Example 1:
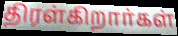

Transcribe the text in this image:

திரள்கிறார்கள்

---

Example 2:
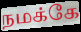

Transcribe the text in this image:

நமக்கே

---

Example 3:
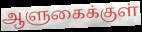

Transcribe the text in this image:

ஆளுகைக்குள்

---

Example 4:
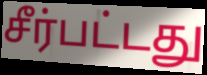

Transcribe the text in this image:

சீர்பட்டது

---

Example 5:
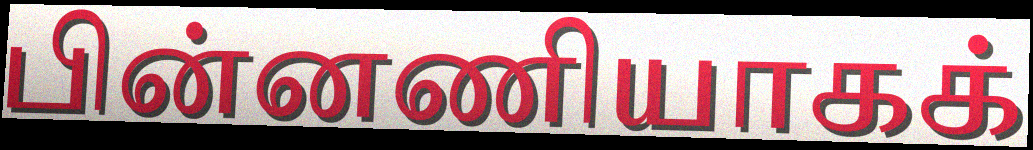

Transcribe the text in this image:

பின்னணியாகக்